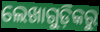
ଲେଖାଗୁଡ଼ିକରୁ